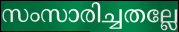
സംസാരിച്ചതല്ലേ